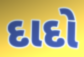
દાદો